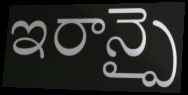
ఇరాన్పై